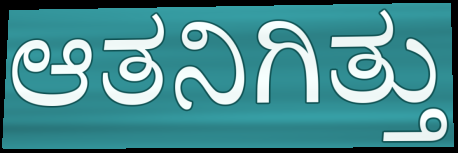
ಆತನಿಗಿತ್ತು